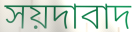
সয়দাবাদ